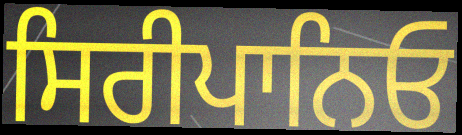
ਸਿਰੀਪਾਨਿਓ